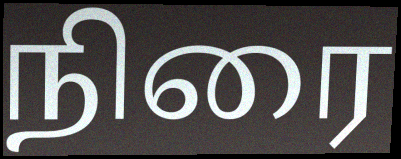
நிரை